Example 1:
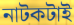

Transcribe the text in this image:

নাটকটাই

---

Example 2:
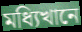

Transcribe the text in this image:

মধ্যিখানে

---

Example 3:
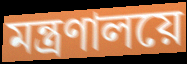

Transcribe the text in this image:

মন্ত্রণালয়ে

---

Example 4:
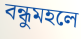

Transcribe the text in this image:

বন্ধুমহলে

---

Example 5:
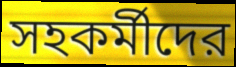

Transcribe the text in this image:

সহকর্মীদের